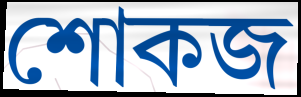
শোকজ